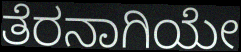
ತೆರನಾಗಿಯೇ